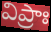
విప్రాః